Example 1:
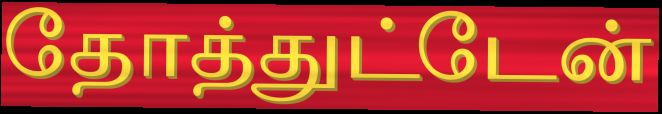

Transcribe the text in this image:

தோத்துட்டேன்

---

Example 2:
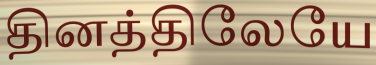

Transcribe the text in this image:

தினத்திலேயே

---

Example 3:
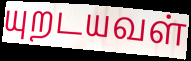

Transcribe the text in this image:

யுறடயவள்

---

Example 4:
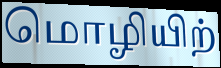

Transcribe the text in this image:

மொழியிற்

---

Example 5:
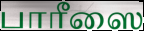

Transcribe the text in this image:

பாரீஸை